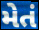
મેતં